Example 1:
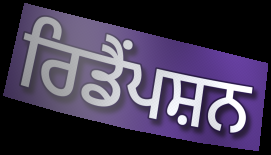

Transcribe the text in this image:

ਰਿਡੈਂਪਸ਼ਨ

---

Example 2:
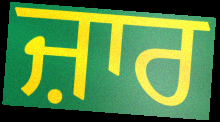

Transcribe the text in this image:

ਜ਼ਾਰ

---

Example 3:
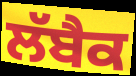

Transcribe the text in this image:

ਲੱਬੈਕ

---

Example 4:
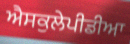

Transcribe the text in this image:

ਐਸਕੁਲੇਪੀਡੀਆ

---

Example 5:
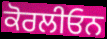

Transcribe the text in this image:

ਕੋਰਲੀਓਨ